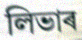
লিভাৰ